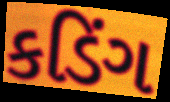
કડિંગ